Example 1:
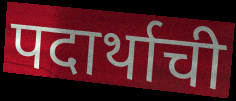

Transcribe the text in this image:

पदार्थाची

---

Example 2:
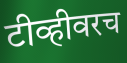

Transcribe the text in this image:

टीव्हीवरच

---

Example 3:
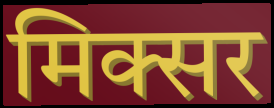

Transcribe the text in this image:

मिक्‍सर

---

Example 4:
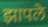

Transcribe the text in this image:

झापले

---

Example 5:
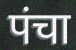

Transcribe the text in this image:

पंचा